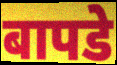
बापडे